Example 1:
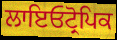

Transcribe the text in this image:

ਲਾਇਓਟ੍ਰੋਪਿਕ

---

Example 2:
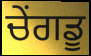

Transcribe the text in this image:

ਚੇਂਗਡੂ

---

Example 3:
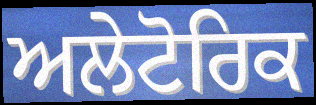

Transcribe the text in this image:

ਅਲੇਟੋਰਿਕ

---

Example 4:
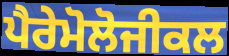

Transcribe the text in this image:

ਪੈਰੇਮੋਲੋਜੀਕਲ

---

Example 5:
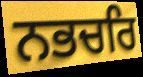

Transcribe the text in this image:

ਨਭਚਰਿ